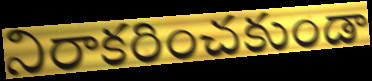
నిరాకరించకుండా